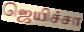
ஜெயிச்சா